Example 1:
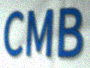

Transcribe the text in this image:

CMB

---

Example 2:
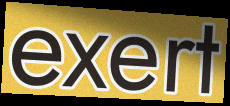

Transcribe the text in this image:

exert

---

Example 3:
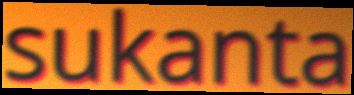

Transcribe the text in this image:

sukanta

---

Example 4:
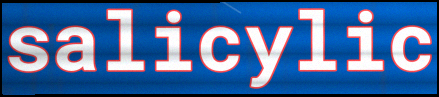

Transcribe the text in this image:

salicylic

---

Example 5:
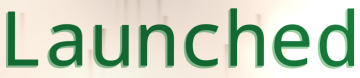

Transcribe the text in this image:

Launched